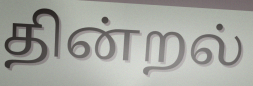
தின்றல்